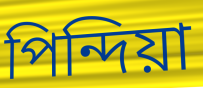
পিন্দিয়া